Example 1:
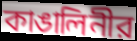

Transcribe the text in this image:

কাঙালিনীর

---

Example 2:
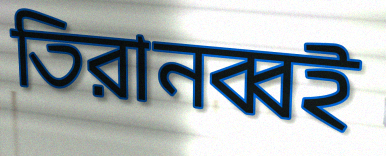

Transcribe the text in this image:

তিরানব্বই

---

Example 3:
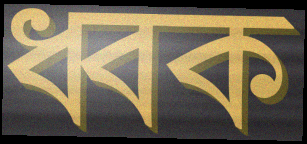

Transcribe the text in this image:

ধ্বক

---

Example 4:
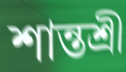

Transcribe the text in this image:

শান্তশ্রী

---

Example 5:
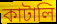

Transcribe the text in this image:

কাটালি